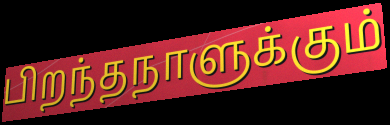
பிறந்தநாளுக்கும்